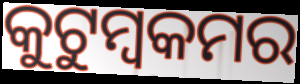
କୁଟୁମ୍ବକମର